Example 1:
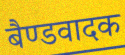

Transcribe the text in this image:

बैण्डवादक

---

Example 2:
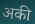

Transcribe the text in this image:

अकी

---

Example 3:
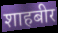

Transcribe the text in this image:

शाहबीर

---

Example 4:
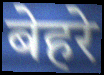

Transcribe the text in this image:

बेहरे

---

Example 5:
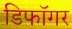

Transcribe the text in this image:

डिफॉगर